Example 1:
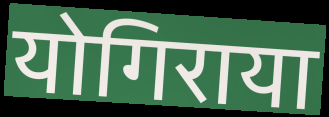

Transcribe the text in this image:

योगिराया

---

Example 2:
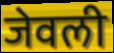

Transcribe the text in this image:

जेवली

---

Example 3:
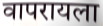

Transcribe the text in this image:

वापरायला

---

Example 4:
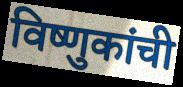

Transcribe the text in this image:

विष्णुकांची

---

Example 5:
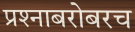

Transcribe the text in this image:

प्रश्‍नाबरोबरच